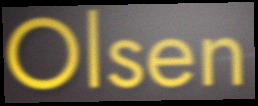
Olsen